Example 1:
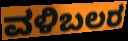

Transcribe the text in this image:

ವಳಿಬಲರ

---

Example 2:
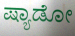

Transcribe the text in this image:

ಷ್ಯಾಡೋ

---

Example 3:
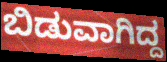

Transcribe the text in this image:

ಬಿಡುವಾಗಿದ್ದ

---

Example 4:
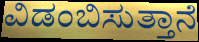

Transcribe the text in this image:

ವಿಡಂಬಿಸುತ್ತಾನೆ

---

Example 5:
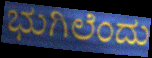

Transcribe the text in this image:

ಭುಗಿಲೆಂದು